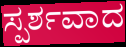
ಸ್ಪರ್ಶವಾದ